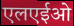
एलएईओ